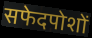
सफेदपोशों